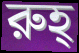
রুহ্